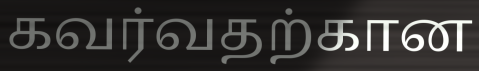
கவர்வதற்கான